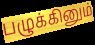
பழுக்கினும்